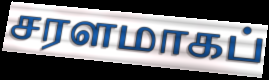
சரளமாகப்